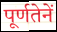
पूर्णतेनें